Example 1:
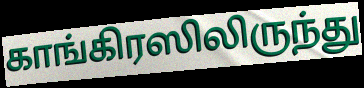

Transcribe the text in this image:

காங்கிரஸிலிருந்து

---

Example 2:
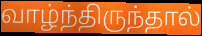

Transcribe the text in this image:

வாழ்ந்திருந்தால்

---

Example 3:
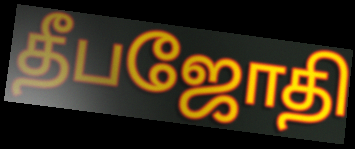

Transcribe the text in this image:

தீபஜோதி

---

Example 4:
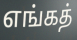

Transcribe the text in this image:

எங்கத்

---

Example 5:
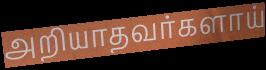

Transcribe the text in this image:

அறியாதவர்களாய்